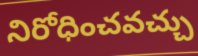
నిరోధించవచ్చు